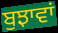
ਬੁਝਾਵਾਂ